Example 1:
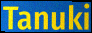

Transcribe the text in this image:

Tanuki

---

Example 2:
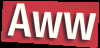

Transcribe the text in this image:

Aww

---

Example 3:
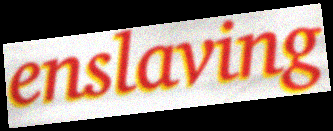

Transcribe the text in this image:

enslaving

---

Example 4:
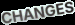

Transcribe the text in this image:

CHANGES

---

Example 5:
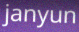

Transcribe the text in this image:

janyun